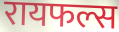
रायफल्स